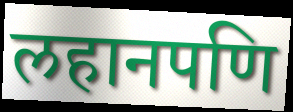
लहानपणि